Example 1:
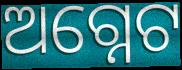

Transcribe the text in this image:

ଅଗ୍ନେଟ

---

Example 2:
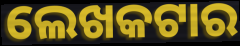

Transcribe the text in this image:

ଲେଖକଟାର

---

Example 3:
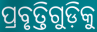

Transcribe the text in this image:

ପ୍ରବୃତ୍ତିଗୁଡ଼ିକୁ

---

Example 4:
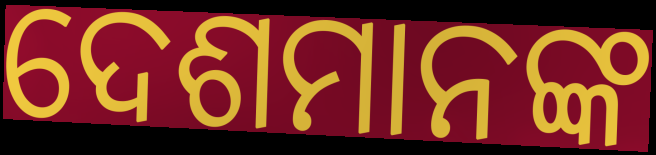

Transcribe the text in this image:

ଦେଶମାନଙ୍କ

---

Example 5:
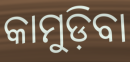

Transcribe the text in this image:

କାମୁଡ଼ିବା